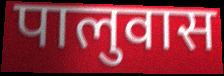
पालुवास